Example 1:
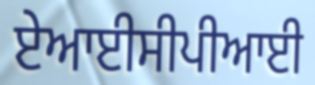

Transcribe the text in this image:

ਏਆਈਸੀਪੀਆਈ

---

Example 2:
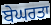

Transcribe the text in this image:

ਬੇਘਰਤਾ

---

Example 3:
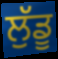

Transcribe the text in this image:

ਲੁੱਡੂ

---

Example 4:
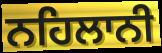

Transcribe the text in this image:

ਨਹਿਲਾਨੀ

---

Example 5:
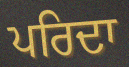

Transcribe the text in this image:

ਪਰਿਦਾ